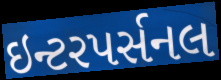
ઇન્ટરપર્સનલ